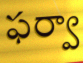
ఫర్వా